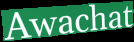
Awachat